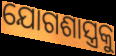
ଯୋଗଶାସ୍ତ୍ରକୁ